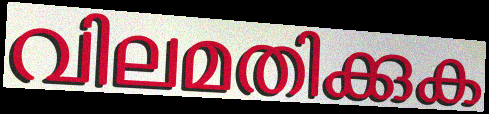
വിലമതിക്കുക